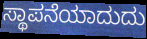
ಸ್ಥಾಪನೆಯಾದುದು